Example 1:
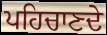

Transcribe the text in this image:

ਪਹਿਚਾਣਦੇ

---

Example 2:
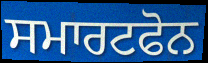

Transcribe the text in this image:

ਸਮਾਰਟਫੋਨ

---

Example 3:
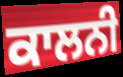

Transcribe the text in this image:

ਕਾਲਨੀ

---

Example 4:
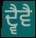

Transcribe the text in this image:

ਦ੍ਵੈਵੈ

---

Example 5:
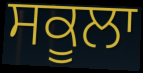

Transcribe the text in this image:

ਸਕੂਲਾ